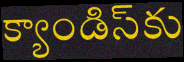
క్యాండిస్‌కు